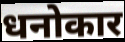
धनोकार